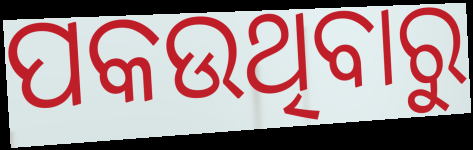
ପକଉଥିବାରୁ